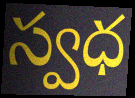
స్వధ